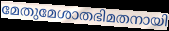
മേതുമേശാതഭിമതനായി